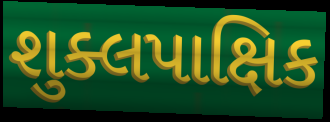
શુક્લપાક્ષિક